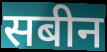
सबीन